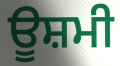
ਊਸ਼ਮੀ